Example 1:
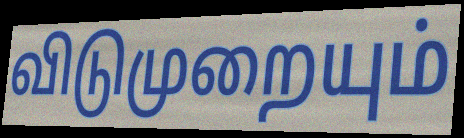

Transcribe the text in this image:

விடுமுறையும்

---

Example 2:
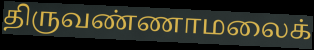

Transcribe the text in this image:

திருவண்ணாமலைக்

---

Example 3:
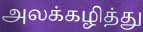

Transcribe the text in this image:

அலக்கழித்து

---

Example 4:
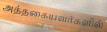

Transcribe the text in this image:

அத்தகையவர்களில்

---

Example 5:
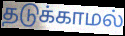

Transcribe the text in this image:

தடுக்காமல்